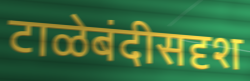
टाळेबंदीसदृश